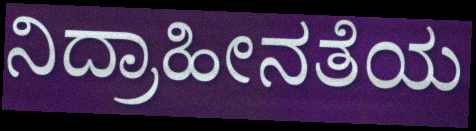
ನಿದ್ರಾಹೀನತೆಯ